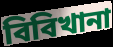
বিবিখানা